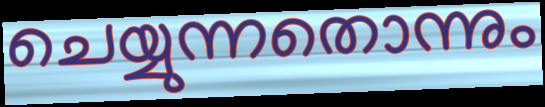
ചെയ്യുന്നതൊന്നും